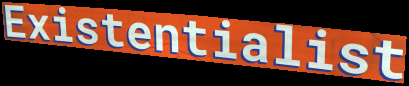
Existentialist